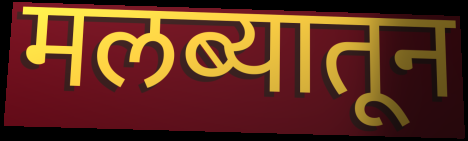
मलब्यातून